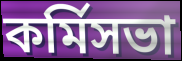
কর্মিসভা